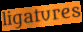
ligatures